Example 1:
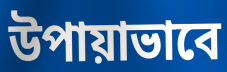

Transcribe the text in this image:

উপায়াভাবে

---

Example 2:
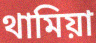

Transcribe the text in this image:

থামিয়া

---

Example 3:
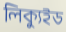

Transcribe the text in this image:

লিক্যুইড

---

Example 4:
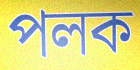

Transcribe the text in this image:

পলক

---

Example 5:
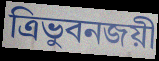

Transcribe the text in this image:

ত্রিভুবনজয়ী